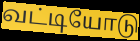
வட்டியோடு